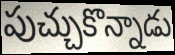
పుచ్చుకొన్నాడు